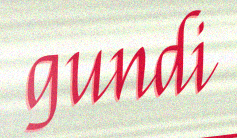
gundi